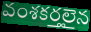
వంశకర్తలైన